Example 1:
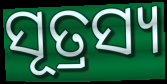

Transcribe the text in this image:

ସୂତ୍ରସ୍ୟ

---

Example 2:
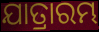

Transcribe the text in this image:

ଯାତ୍ରାରମ୍ଭ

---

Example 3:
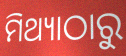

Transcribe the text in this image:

ମିଥ୍ୟାଠାରୁ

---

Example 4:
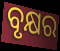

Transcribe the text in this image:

ବୃକ୍ଷର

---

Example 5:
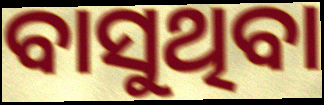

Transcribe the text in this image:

ବାସୁଥିବା